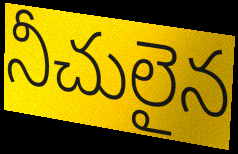
నీచులైన